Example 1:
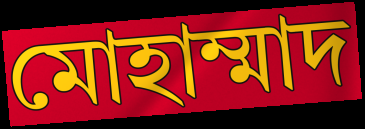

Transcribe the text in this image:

মোহাম্মাদ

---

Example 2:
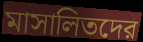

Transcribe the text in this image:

মাসালিতদের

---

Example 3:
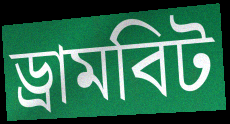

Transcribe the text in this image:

ড্রামবিট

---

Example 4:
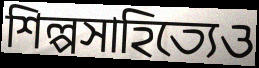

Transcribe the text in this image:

শিল্পসাহিত্যেও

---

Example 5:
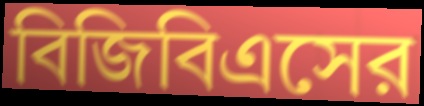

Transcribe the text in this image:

বিজিবিএসের